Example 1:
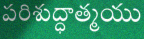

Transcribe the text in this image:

పరిశుద్ధాత్మయు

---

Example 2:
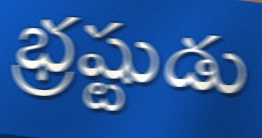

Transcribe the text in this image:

భ్రష్టుడు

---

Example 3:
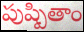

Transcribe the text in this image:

పుష్పితాం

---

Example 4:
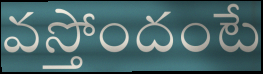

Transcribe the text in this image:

వస్తోందంటే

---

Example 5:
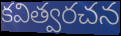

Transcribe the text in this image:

కవిత్వరచన